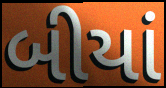
બીયાં